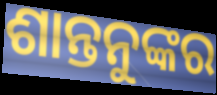
ଶାନ୍ତନୁଙ୍କର